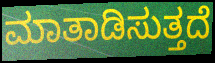
ಮಾತಾಡಿಸುತ್ತದೆ